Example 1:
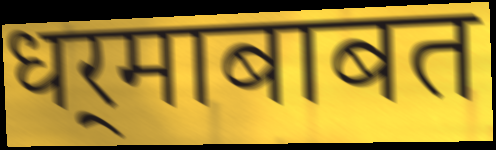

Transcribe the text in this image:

धर्माबाबत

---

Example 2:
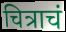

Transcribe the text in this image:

चित्राचं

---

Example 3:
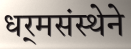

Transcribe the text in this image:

धर्मसंस्थेने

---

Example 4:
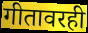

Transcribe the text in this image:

गीतावरही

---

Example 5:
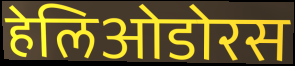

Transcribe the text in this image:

हेलिओडोरस